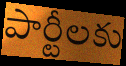
పార్టీలకు